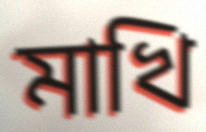
মাখি